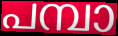
പമ്പാ